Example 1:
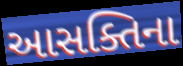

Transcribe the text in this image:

આસક્તિના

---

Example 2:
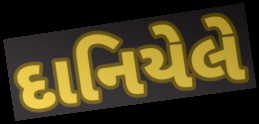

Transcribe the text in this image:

દાનિયેલે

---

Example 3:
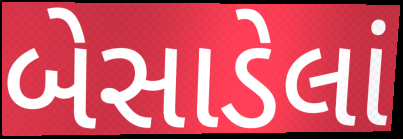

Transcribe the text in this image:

બેસાડેલાં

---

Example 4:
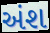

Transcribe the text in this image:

અંશ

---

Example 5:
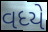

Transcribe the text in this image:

વધ્યે